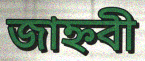
জাহ্নবী